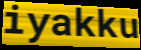
iyakku